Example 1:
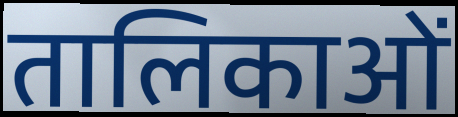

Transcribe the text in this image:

तालिकाओं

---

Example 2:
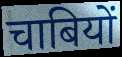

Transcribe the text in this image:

चाबियों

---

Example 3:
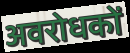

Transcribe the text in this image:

अवरोधकों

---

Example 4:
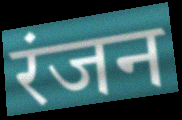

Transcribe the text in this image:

रंजन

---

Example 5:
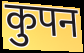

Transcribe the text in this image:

कुपन